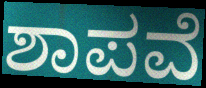
ಶಾಪವೆ